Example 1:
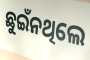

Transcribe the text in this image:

ଛୁଇଁନଥିଲେ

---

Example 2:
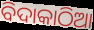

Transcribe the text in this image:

ବିଦାକାଠିଆ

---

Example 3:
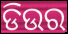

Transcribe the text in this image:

ଡିଉର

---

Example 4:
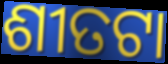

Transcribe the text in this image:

ଶୀତଟା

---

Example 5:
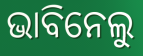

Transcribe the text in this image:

ଭାବିନେଲୁ